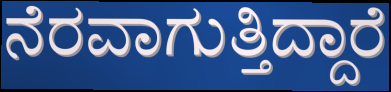
ನೆರವಾಗುತ್ತಿದ್ದಾರೆ